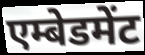
एम्बेडमेंट